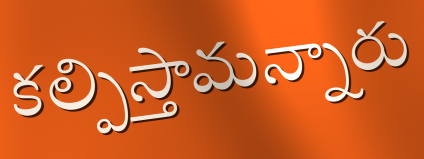
కల్పిస్తామన్నారు